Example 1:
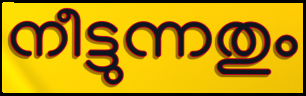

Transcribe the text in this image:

നീട്ടുന്നതും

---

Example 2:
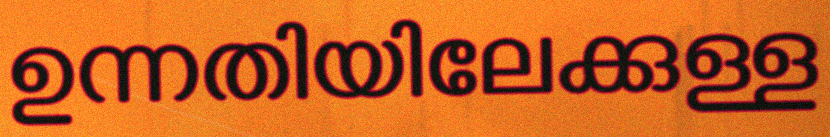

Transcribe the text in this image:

ഉന്നതിയിലേക്കുള്ള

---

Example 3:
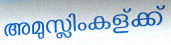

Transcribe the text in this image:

അമുസ്ലിംകള്ക്ക്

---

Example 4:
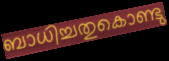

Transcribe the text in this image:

ബാധിച്ചതുകൊണ്ടു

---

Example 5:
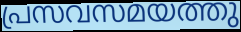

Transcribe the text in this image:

പ്രസവസമയത്തു